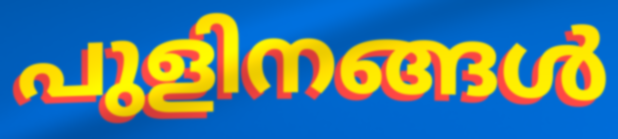
പുളിനങ്ങൾ